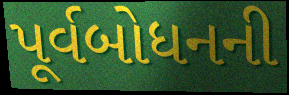
પૂર્વબોધનની